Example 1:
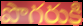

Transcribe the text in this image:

పొగరుకి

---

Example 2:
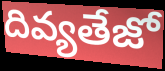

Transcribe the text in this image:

దివ్యతేజో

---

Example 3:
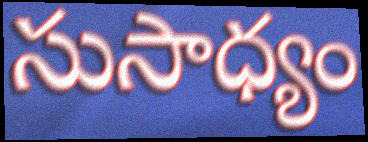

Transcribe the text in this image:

సుసాధ్యం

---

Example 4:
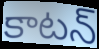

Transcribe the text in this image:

కాటన్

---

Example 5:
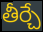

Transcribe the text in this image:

తీర్చే